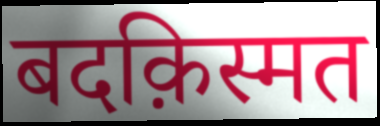
बदक़िस्मत